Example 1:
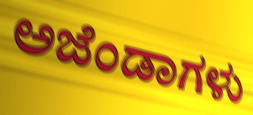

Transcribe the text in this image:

ಅಜೆಂಡಾಗಳು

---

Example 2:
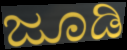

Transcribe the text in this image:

ಜೂಡಿ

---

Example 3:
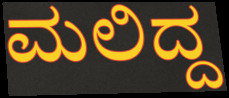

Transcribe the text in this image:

ಮಲಿದ್ದ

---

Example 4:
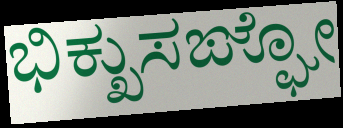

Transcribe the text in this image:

ಭಿಕ್ಖುಸಙ್ಘೋ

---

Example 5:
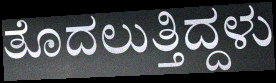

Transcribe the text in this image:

ತೊದಲುತ್ತಿದ್ದಳು